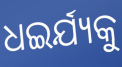
ଧଇର୍ଯ୍ୟକୁ